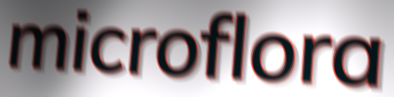
microflora